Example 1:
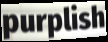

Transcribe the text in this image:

purplish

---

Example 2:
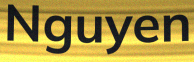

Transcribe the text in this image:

Nguyen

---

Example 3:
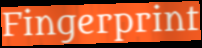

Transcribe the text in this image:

Fingerprint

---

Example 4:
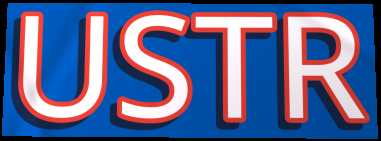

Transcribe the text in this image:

USTR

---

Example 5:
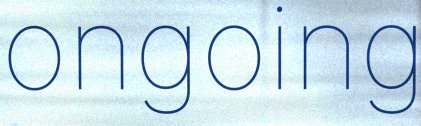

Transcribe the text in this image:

ongoing